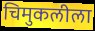
चिमुकलीला